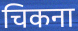
चिकना